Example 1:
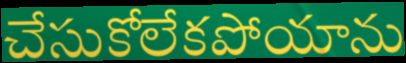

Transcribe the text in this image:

చేసుకోలేకపోయాను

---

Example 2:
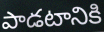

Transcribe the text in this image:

పాడటానికి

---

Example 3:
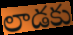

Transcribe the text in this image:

లాడకు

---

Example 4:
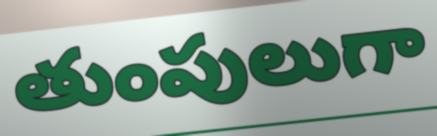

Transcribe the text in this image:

తుంపులుగా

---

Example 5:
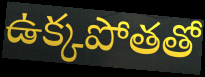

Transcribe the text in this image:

ఉక్కపోతతో